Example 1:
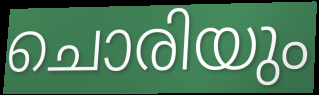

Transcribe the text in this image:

ചൊരിയും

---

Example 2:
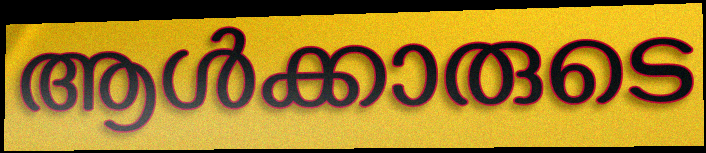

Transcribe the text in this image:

ആൾക്കാരുടെ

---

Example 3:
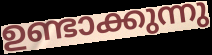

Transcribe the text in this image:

ഉണ്ടാക്കുന്നു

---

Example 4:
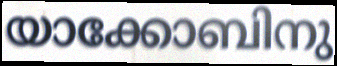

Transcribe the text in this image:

യാക്കോബിനു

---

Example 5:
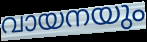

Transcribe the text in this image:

വായനയും